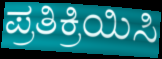
ಪ್ರತಿಕ್ರಿಯಿಸಿ